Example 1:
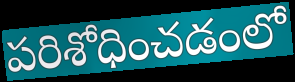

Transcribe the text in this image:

పరిశోధించడంలో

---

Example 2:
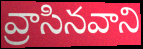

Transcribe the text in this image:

వ్రాసినవాని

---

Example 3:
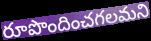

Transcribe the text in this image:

రూపొందించగలమని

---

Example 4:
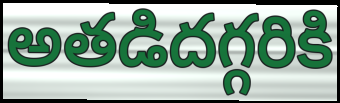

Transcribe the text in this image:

అతడిదగ్గరికి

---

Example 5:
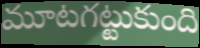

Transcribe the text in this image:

మూటగట్టుకుంది